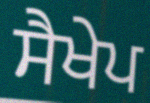
ਸੈਖੇਪ